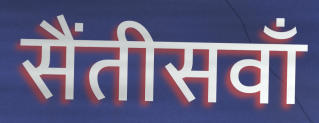
सैंतीसवाँ